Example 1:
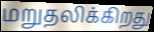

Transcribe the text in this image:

மறுதலிக்கிறது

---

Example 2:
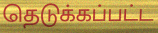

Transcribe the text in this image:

தெடுக்கப்பட்ட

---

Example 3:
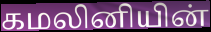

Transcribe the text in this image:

கமலினியின்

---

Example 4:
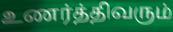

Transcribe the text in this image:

உணர்த்திவரும்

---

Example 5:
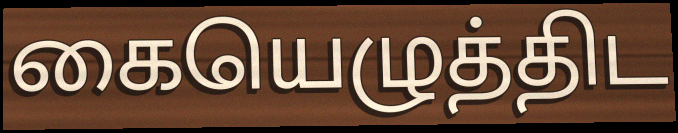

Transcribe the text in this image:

கையெழுத்திட